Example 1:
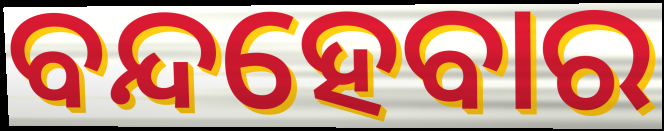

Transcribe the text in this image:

ବନ୍ଦହେବାର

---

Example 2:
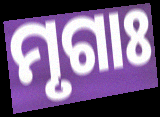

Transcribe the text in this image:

ମୃଗାଃ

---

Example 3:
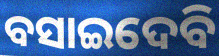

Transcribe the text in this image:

ବସାଇଦେବି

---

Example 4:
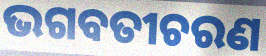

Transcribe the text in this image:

ଭଗବତୀଚରଣ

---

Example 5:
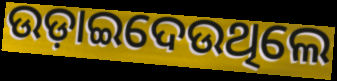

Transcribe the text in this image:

ଉଡ଼ାଇଦେଉଥିଲେ